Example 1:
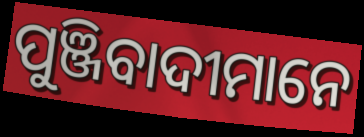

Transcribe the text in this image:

ପୁଞ୍ଜିବାଦୀମାନେ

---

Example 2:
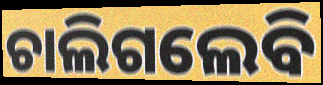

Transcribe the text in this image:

ଚାଲିଗଲେବି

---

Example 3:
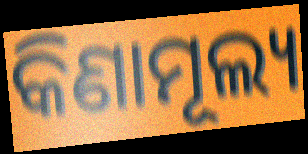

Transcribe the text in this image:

କିଣାମୂଲ୍ୟ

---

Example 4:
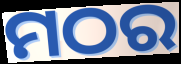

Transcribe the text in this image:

ମଠର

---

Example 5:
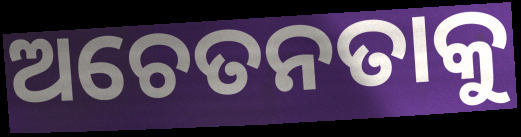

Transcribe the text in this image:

ଅଚେତନତାକୁ